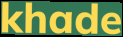
khade